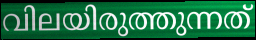
വിലയിരുത്തുന്നത്